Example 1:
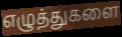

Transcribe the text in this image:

எழுத்துகளை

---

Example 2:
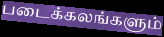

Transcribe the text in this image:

படைக்கலங்களும்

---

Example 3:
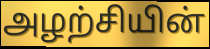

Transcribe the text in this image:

அழற்சியின்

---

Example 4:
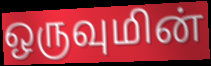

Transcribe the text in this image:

ஒருவுமின்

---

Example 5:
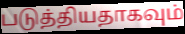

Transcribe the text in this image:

படுத்தியதாகவும்